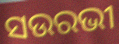
ସଉରଭୀ